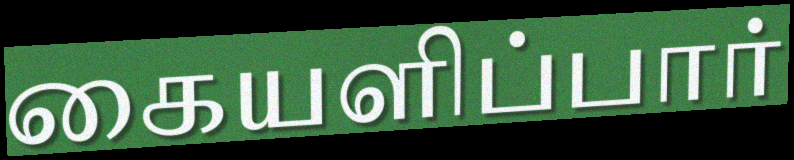
கையளிப்பார்